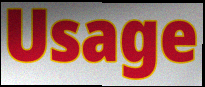
Usage